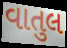
વાતુલ